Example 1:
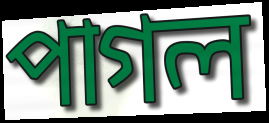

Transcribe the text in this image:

পাগল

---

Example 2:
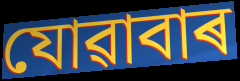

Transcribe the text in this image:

যোৱাবাৰ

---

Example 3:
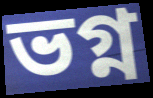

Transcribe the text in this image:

ভগ্ন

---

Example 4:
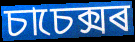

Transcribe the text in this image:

চাচেক্সৰ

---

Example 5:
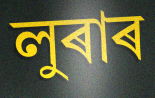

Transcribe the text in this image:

লুৰাৰ